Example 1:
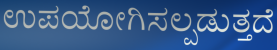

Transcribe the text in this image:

ಉಪಯೋಗಿಸಲ್ಪಡುತ್ತದೆ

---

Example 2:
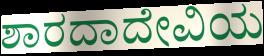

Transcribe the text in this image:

ಶಾರದಾದೇವಿಯ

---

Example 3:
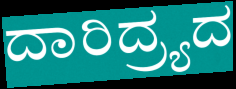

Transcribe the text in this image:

ದಾರಿದ್ರ್ಯದ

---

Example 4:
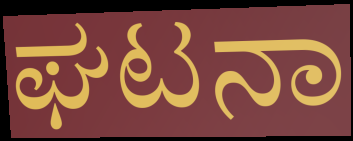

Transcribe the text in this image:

ಘಟನಾ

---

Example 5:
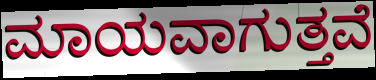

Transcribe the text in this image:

ಮಾಯವಾಗುತ್ತವೆ